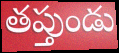
తప్తుండు